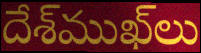
దేశ్‌ముఖ్‌లు